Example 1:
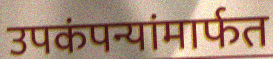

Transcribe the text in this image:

उपकंपन्यांमार्फत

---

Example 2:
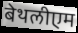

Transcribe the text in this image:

बेथलीएम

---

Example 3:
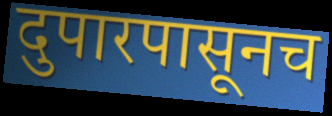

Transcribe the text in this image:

दुपारपासूनच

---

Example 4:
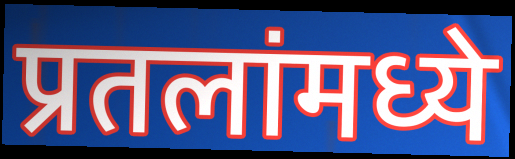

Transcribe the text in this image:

प्रतलांमध्ये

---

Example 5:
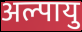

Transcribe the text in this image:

अल्पायु